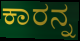
ಕಾರನ್ನ